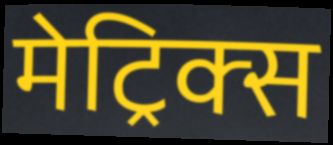
मेट्रिक्‍स